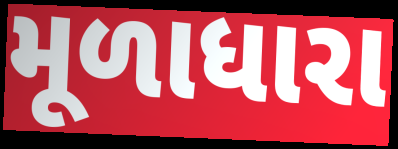
મૂળાધારા